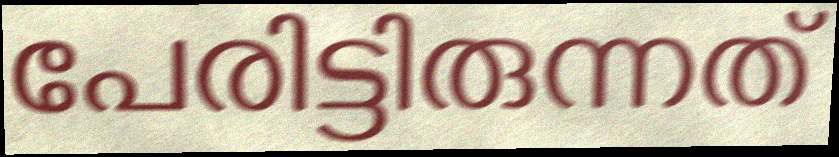
പേരിട്ടിരുന്നത്